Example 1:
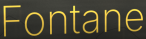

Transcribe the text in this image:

Fontane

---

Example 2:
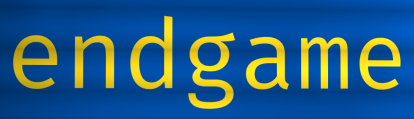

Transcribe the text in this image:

endgame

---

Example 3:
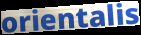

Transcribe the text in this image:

orientalis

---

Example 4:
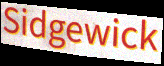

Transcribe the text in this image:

Sidgewick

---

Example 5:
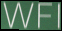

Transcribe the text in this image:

WFI